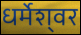
धर्मेश्वर